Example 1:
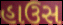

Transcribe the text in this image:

હાઉસ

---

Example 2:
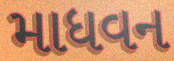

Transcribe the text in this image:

માધવન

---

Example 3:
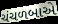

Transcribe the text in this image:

ચંચળબાએ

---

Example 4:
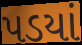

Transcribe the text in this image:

પડયાં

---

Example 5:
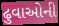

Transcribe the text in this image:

ઢુવાઓની